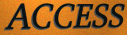
ACCESS